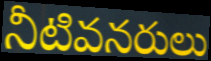
నీటివనరులు